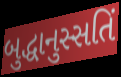
બુદ્ધાનુસ્સતિં